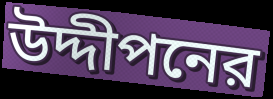
উদ্দীপনের